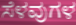
ಸೆಳವುಗಳ